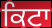
ਕਿਟਾ